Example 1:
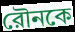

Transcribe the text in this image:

রৌনকে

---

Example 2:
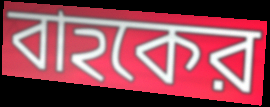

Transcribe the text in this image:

বাহকের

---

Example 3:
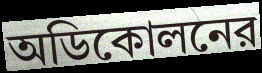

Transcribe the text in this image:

অডিকোলনের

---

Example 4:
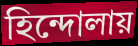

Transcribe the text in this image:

হিন্দোলায়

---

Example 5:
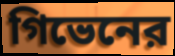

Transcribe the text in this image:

গিভেনের